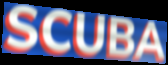
SCUBA